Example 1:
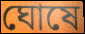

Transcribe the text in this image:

ঘোষে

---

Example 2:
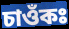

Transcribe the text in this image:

চাওঁকঃ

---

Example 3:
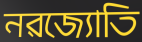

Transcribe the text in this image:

নৱজ্যোতি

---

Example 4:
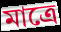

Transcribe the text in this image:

মাত্ৰে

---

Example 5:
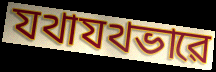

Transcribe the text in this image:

যথাযথভাৱে